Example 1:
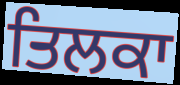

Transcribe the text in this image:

ਤਿਲਕਾ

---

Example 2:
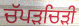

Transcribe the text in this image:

ਚੱਪੜਚਿੜੀ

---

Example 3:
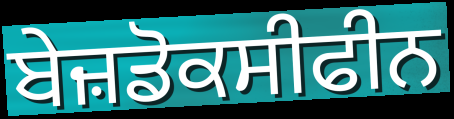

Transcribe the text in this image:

ਬੇਜ਼ਡੋਕਸੀਫੀਨ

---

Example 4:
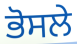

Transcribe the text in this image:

ਭੋਸਲੇ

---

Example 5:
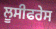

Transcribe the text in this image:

ਲੂਸੀਫਰੇਸ